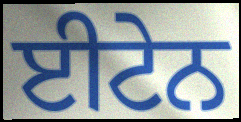
ਈਟੇਨ